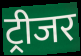
ट्रीजर